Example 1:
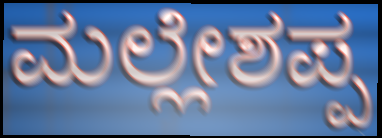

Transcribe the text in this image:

ಮಲ್ಲೇಶಪ್ಪ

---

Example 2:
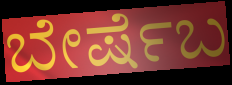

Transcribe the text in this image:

ಬೇರ್ಷೆಬ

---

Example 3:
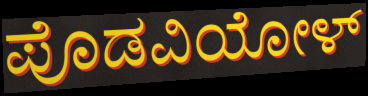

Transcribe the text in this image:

ಪೊಡವಿಯೋಳ್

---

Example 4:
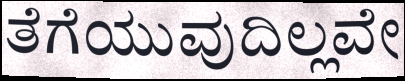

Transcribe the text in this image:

ತೆಗೆಯುವುದಿಲ್ಲವೇ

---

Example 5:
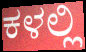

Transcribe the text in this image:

ಕಳಲ್ಲಿ